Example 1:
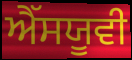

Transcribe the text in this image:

ਐੱਸਯੂਵੀ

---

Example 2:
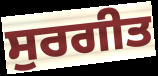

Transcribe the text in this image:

ਸੁਰਗੀਤ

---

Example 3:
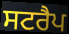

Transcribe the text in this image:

ਸਟਰੈਪ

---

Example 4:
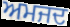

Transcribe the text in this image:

ਅਮਜਦ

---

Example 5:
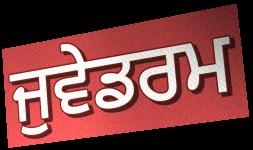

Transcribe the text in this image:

ਜੁਵੇਡਰਮ